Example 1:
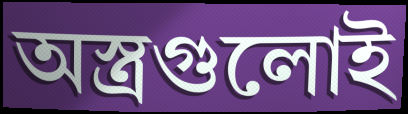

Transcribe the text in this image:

অস্ত্রগুলোই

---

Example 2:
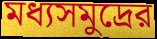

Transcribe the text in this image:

মধ্যসমুদ্রের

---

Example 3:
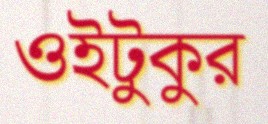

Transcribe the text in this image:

ওইটুকুর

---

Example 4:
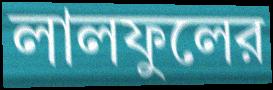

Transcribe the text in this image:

লালফুলের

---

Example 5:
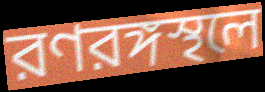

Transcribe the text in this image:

রণরঙ্গস্থলে